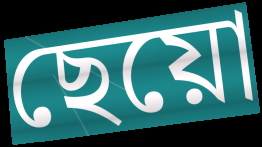
ছেয়ো